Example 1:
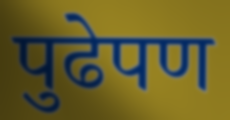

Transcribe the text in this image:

पुढेपण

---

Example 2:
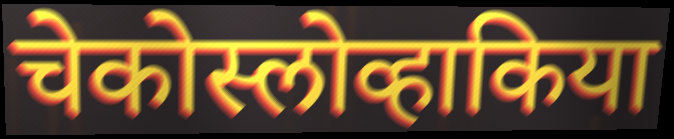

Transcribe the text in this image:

चेकोस्लोव्हाकिया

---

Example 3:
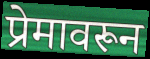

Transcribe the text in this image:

प्रेमावरून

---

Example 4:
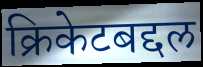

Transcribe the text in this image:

क्रिकेटबद्दल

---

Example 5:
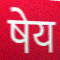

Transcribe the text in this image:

षेय